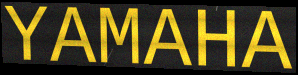
YAMAHA